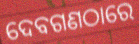
ଦେବଗଣଠାରେ